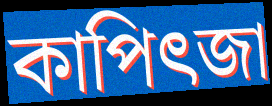
কাপিৎজা